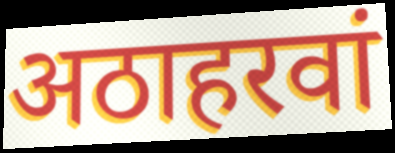
अठाहरवां